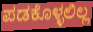
ಪಡಕೊಳ್ಳಲಿಲ್ಲ